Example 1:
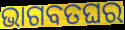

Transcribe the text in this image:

ଭାଗବତଘର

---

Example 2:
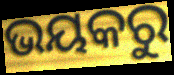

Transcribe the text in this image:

ଭୟକରୁ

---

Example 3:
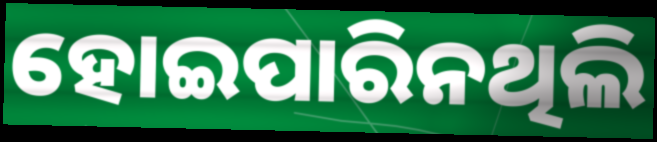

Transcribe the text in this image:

ହୋଇପାରିନଥିଲି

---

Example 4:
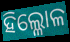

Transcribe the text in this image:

ହିଲ୍ଳୋଳ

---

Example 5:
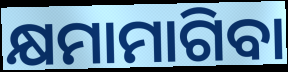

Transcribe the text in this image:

କ୍ଷମାମାଗିବା